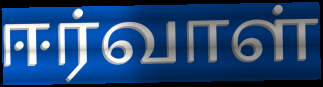
ஈர்வாள்